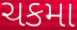
ચકમા